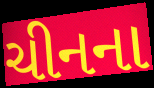
ચીનના